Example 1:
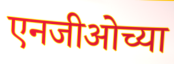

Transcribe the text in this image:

एनजीओच्या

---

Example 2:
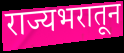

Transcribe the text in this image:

राज्यभरातून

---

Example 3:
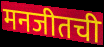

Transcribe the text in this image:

मनजीतची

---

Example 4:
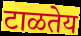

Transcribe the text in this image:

टाळतेय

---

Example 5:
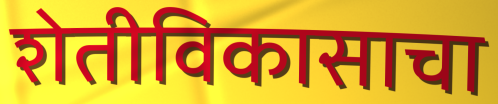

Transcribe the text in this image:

शेतीविकासाचा